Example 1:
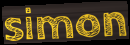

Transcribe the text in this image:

simon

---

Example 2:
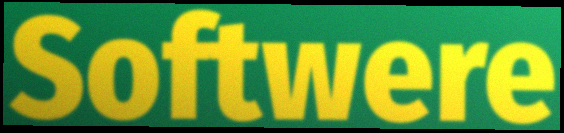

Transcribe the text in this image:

Softwere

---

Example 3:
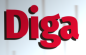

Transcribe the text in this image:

Diga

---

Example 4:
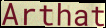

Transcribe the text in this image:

Arthat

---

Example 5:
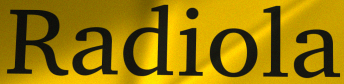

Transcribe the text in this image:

Radiola